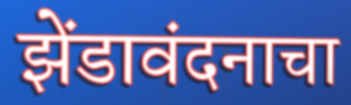
झेंडावंदनाचा